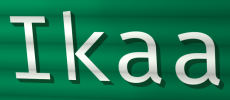
Ikaa